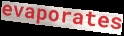
evaporates